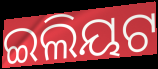
ଇଲିୟଟ